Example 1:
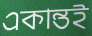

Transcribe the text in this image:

একান্তই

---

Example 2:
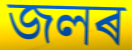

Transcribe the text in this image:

জলৰ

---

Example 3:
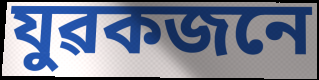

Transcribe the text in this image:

যুৱকজনে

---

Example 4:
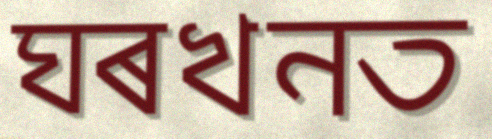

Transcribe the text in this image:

ঘৰখনত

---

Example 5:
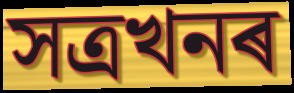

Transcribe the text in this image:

সত্ৰখনৰ